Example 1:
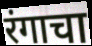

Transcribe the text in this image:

रंगाचा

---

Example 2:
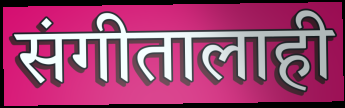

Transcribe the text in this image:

संगीतालाही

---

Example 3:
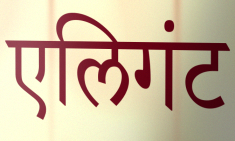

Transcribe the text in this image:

एलिगंट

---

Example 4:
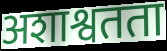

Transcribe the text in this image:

अशाश्वतता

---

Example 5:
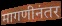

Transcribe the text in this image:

मागणीनंतर